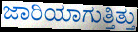
ಜಾರಿಯಾಗುತ್ತಿತ್ತು